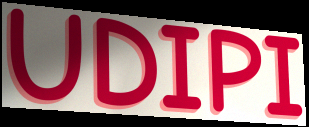
UDIPI